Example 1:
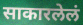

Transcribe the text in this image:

साकारलेलं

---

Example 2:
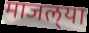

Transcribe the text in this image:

माजल्या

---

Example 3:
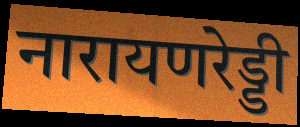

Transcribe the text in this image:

नारायणरेड्डी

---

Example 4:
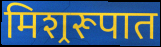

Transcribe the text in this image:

मिश्ररूपात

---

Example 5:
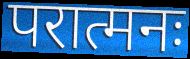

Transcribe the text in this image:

परात्मनः